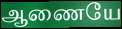
ஆணையே